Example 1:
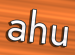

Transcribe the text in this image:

ahu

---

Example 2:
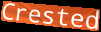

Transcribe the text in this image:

Crested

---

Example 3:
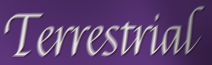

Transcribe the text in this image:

Terrestrial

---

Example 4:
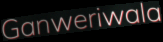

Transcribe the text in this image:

Ganweriwala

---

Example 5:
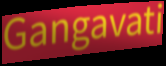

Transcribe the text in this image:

Gangavati